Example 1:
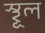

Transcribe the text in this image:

স্থূল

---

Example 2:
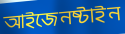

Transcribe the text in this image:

আইজেনষ্টাইন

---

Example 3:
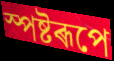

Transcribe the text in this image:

স্পষ্টৰূপে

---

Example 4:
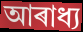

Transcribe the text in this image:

আৰাধ্য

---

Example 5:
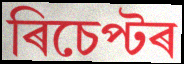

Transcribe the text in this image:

ৰিচেপ্টৰ